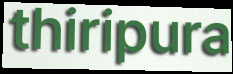
thiripura